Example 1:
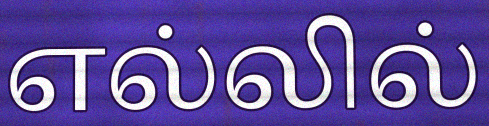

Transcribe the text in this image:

எல்லில்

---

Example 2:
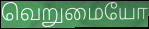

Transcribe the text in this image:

வெறுமையோ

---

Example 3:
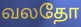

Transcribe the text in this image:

வலதோ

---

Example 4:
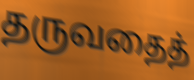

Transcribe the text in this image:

தருவதைத்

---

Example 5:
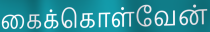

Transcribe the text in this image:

கைக்கொள்வேன்